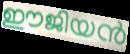
ഈജിയൻ